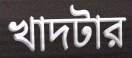
খাদটার